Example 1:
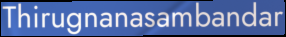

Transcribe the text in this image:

Thirugnanasambandar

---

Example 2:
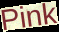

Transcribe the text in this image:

Pink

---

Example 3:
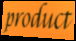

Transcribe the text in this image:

product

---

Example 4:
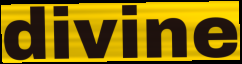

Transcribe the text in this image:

divine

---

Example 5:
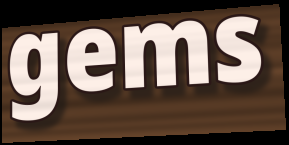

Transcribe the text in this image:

gems